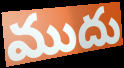
ముదు